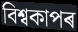
বিশ্বকাপৰ